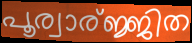
പൂര്വാര്ജ്ജിത